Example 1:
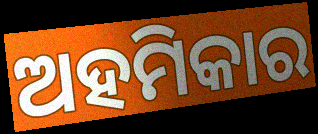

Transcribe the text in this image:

ଅହମିକାର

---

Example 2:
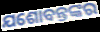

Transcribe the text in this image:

ଯଶୋବନ୍ତଙ୍କର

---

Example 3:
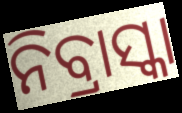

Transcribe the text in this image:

ନିବ୍ରାସ୍କା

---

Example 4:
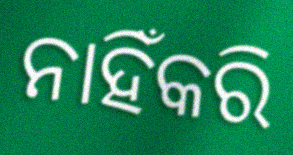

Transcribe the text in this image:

ନାହିଁକରି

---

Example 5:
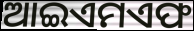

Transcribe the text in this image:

ଆଇଏମଏଫ